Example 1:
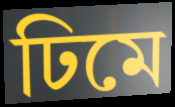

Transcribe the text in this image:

ঢিমে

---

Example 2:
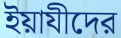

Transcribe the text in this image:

ইয়াযীদের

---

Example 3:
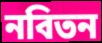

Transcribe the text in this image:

নবিতন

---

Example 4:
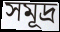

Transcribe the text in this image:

সমূদ্র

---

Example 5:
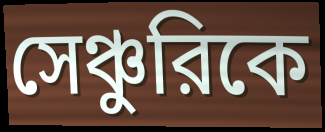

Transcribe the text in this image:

সেঞ্চুরিকে